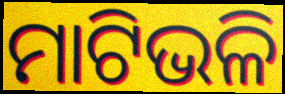
ମାଟିଭଳି